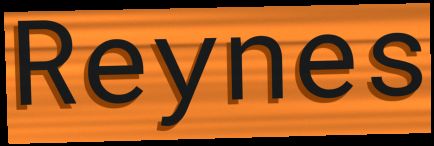
Reynes